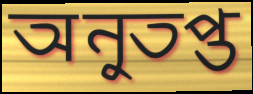
অনুতপ্ত